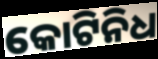
କୋଟିନିଧ